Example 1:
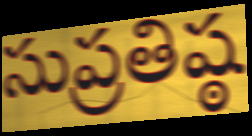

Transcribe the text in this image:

సుప్రతిష్ఠ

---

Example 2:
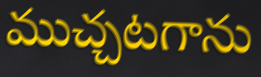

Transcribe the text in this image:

ముచ్చటగాను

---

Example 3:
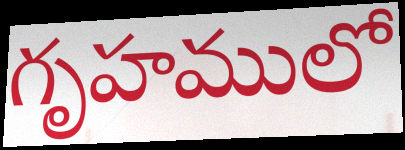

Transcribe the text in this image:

గృహములో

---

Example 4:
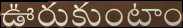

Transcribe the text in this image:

ఊరుకుంటాం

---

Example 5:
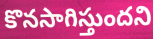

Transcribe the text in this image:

కొనసాగిస్తుందని